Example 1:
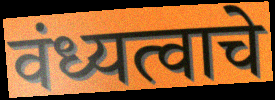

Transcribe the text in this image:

वंध्यत्वाचे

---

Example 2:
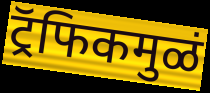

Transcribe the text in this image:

ट्रॅफिकमुळं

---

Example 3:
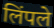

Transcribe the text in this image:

लिंपले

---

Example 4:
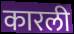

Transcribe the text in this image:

कारली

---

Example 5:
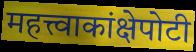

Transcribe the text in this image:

महत्त्वाकांक्षेपोटी